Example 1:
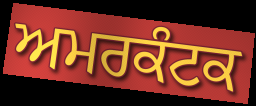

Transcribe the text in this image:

ਅਮਰਕੰਟਕ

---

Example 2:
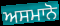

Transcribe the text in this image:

ਅਸਮਾਨੋ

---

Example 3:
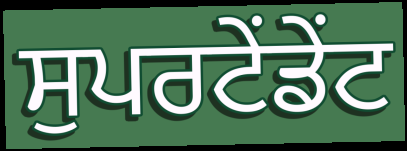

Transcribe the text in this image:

ਸੁਪਰਟੇਂਡੇਂਟ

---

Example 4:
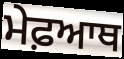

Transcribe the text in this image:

ਮੇਫ਼ਆਥ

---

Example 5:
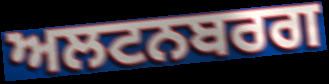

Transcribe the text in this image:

ਅਲਟਨਬਰਗ